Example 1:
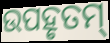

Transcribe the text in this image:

ଉପହୃତମ୍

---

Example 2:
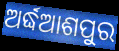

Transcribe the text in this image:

ଅର୍ଦ୍ଧଆଶପୁର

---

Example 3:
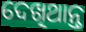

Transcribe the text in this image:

ଦେଖିଥାନ୍ତ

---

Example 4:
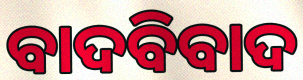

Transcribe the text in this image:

ବାଦବିବାଦ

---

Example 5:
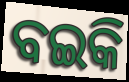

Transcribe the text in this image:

ବଇକି